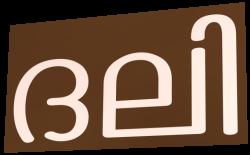
ദലി